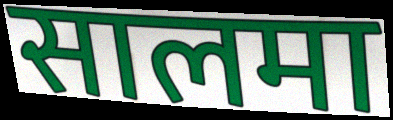
सालमा